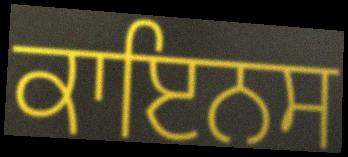
ਕਾਇਨਸ